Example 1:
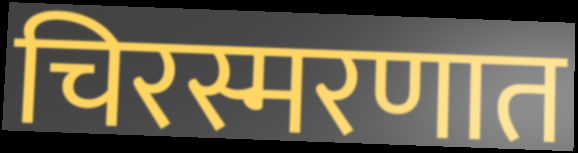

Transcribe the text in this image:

चिरस्मरणात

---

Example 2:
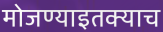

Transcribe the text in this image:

मोजण्याइतक्याच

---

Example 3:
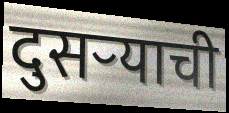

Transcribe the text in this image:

दुसऱ्याची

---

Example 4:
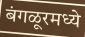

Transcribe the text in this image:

बंगळूरमध्ये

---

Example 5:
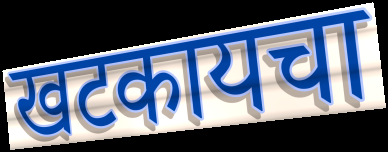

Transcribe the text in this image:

खटकायचा